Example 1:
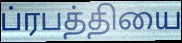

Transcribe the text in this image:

ப்ரபத்தியை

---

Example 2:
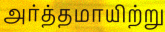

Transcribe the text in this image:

அர்த்தமாயிற்று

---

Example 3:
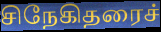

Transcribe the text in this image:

சிநேகிதரைச்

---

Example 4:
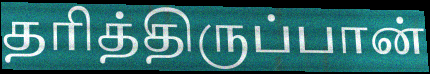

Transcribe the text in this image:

தரித்திருப்பான்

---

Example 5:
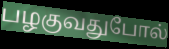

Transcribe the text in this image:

பழகுவதுபோல்